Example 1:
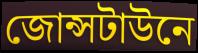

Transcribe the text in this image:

জোন্সটাউনে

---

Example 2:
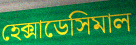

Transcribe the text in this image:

হেক্সাডেসিমাল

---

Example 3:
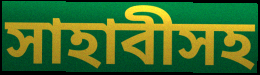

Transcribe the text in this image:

সাহাবীসহ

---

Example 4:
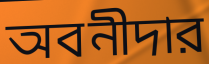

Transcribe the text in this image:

অবনীদার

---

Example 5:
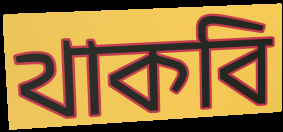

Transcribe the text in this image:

থাকবি